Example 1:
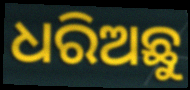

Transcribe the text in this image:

ଧରିଅଛୁ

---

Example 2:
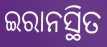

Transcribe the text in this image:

ଇରାନସ୍ଥିତ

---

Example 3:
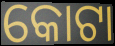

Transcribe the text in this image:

କୋଟା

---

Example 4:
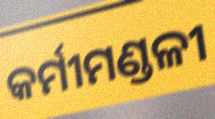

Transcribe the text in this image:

କର୍ମୀମଣ୍ଡଳୀ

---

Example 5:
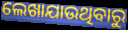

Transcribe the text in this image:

ଲେଖାଯାଉଥିବାରୁ